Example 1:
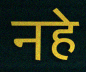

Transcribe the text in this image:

नहे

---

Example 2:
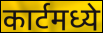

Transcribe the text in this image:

कार्टमध्ये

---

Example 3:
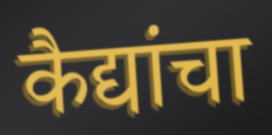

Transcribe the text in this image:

कैद्यांचा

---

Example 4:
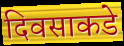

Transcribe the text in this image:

दिवसाकडे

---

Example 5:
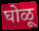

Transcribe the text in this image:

घोळू